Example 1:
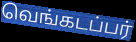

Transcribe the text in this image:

வெங்கடப்பர்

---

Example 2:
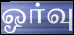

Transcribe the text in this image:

ஓர்வு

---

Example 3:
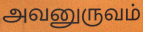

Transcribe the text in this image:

அவனுருவம்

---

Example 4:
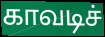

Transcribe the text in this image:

காவடிச்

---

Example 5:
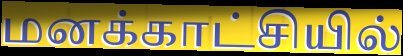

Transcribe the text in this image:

மனக்காட்சியில்